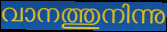
വാനത്തുനിന്നു